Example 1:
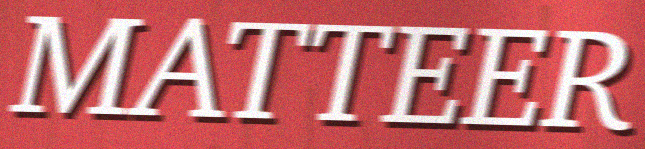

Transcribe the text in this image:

MATTEER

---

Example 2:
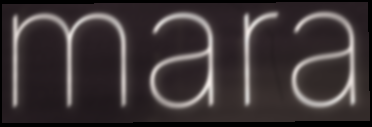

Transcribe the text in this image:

mara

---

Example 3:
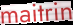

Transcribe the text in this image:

maitrin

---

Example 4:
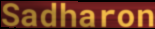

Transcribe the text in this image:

Sadharon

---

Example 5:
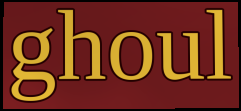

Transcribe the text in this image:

ghoul